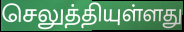
செலுத்தியுள்ளது